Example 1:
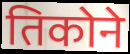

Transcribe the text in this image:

तिकोने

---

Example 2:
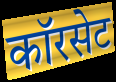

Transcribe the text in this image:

कॉरसेट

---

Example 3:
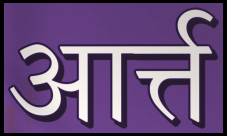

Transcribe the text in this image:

आर्त्त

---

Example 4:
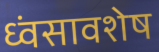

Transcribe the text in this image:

ध्वंसावशेष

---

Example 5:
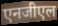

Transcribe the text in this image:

एनजीएल